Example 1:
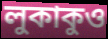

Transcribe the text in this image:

লুকাকুও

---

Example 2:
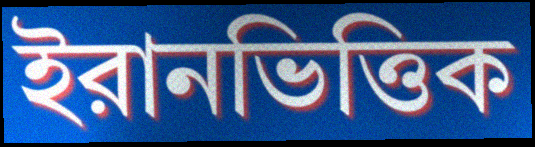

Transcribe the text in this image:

ইরানভিত্তিক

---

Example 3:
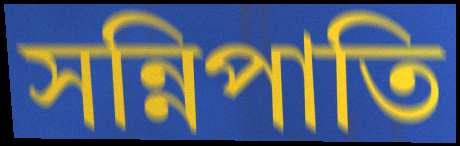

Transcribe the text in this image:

সন্নিপাতি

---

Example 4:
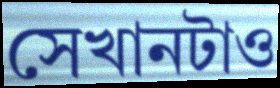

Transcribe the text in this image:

সেখানটাও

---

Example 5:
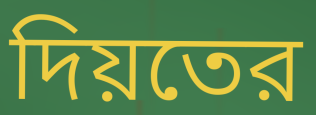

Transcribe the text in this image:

দিয়তের